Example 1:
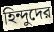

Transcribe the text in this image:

হিন্দুদের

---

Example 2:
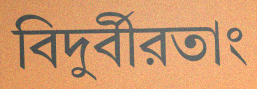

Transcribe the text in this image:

বিদুর্বীরতাং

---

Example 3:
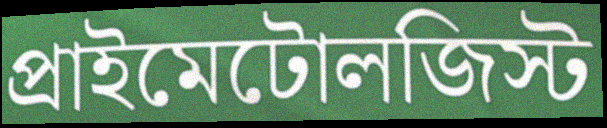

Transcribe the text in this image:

প্রাইমেটোলজিস্ট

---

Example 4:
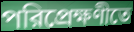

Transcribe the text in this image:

পরিপ্রেক্ষণীতে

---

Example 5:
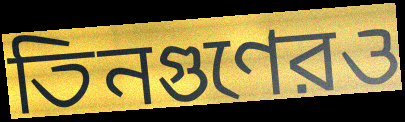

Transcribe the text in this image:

তিনগুণেরও